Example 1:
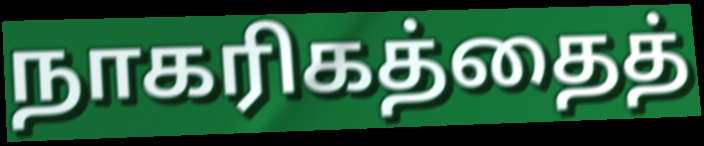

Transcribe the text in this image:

நாகரிகத்தைத்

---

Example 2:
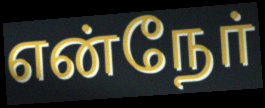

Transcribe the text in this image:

என்நேர்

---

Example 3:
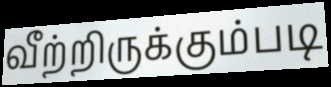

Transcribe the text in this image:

வீற்றிருக்கும்படி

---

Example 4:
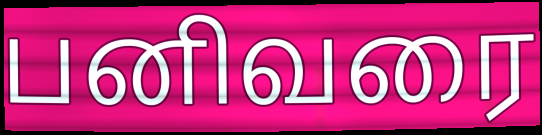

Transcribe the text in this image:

பனிவரை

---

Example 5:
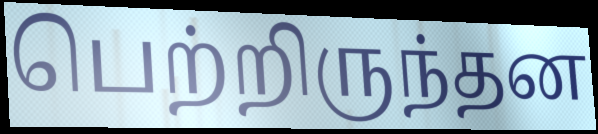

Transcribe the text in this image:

பெற்றிருந்தன